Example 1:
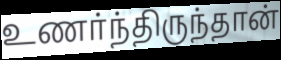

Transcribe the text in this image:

உணர்ந்திருந்தான்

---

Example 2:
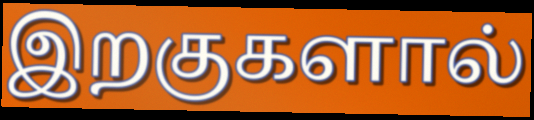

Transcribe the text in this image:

இறகுகளால்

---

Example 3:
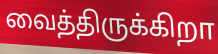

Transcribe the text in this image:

வைத்திருக்கிறா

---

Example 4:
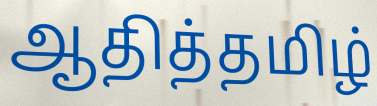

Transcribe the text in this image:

ஆதித்தமிழ்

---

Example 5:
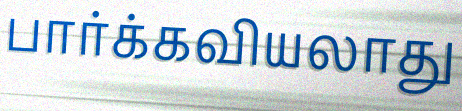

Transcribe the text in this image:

பார்க்கவியலாது